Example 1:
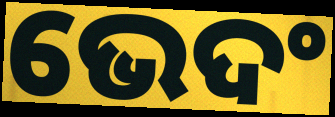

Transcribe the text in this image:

ଭେଦଂ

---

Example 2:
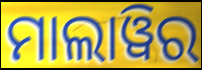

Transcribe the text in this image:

ମାଲାୱିର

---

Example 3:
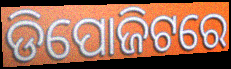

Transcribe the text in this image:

ଡିପୋଜିଟରେ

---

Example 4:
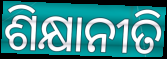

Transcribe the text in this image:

ଶିକ୍ଷାନୀତି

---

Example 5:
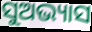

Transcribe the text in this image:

ସୁଅଭ୍ୟାସ